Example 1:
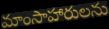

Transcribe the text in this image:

మాంసాహారులను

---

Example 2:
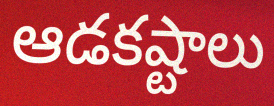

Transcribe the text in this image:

ఆడకష్టాలు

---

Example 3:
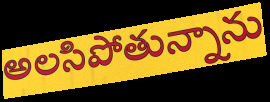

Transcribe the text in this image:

అలసిపోతున్నాను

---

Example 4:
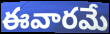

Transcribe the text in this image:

ఈవారమే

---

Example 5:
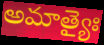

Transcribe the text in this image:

అమాత్యైః